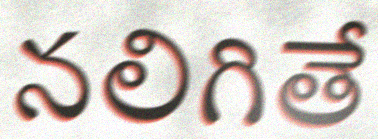
నలిగితే